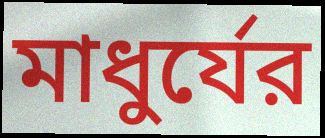
মাধুর্যের